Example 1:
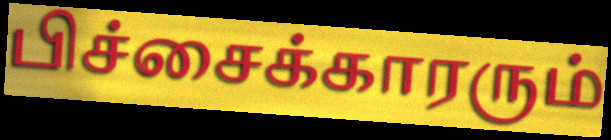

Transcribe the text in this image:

பிச்சைக்காரரும்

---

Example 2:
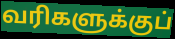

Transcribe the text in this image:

வரிகளுக்குப்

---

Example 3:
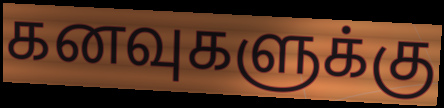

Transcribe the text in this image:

கனவுகளுக்கு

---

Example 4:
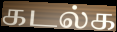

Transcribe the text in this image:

கடல்க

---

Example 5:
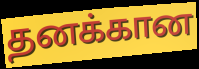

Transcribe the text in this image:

தனக்கான